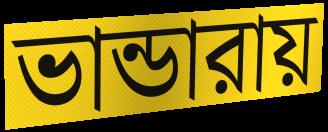
ভান্ডারায়